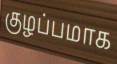
குழப்பமாக